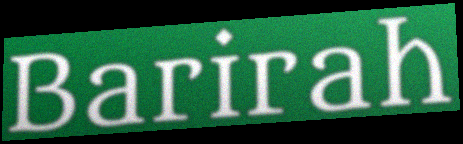
Barirah